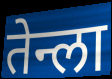
तेन्ला